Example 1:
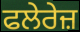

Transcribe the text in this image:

ਫਲੇਰੇਜ਼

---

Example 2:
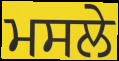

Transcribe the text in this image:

ਮਸਲੇ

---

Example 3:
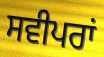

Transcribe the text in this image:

ਸਵੀਪਰਾਂ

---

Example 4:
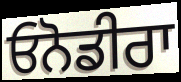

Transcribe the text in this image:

ਓਨੋਡੀਰਾ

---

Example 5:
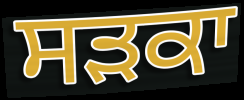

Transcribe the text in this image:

ਸੜਕਾ